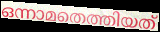
ഒന്നാമതെത്തിയത്